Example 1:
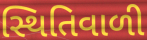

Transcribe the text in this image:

સ્થિતિવાળી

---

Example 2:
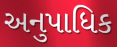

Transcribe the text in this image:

અનુપાધિક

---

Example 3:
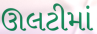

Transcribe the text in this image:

ઊલટીમાં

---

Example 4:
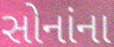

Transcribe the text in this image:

સોનાંના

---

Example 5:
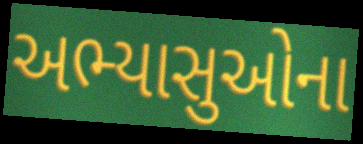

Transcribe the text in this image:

અભ્યાસુઓના